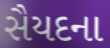
સૈયદના